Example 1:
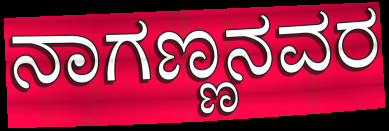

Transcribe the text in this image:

ನಾಗಣ್ಣನವರ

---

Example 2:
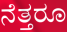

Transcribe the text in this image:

ನೆತ್ತರೂ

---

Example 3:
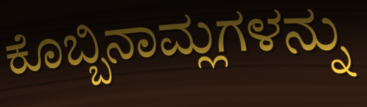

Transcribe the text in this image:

ಕೊಬ್ಬಿನಾಮ್ಲಗಳನ್ನು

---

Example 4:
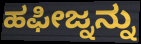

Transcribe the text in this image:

ಹಫೀಜ್ನನ್ನು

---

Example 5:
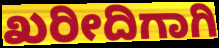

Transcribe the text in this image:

ಖರೀದಿಗಾಗಿ